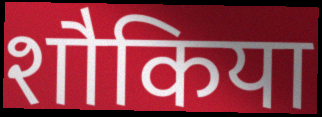
शौकिया